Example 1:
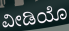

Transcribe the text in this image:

ವೀಡಿಯೊ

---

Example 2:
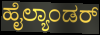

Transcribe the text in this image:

ಹೈಲ್ಯಾಂಡರ್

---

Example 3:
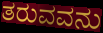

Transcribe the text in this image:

ತರುವವನು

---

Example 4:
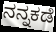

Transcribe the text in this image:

ನನ್ನಕಡೆ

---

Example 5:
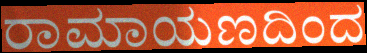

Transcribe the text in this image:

ರಾಮಾಯಣದಿಂದ